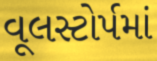
વૂલસ્ટોર્પમાં